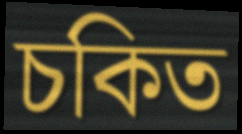
চকিত